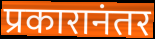
प्रकारानंतर